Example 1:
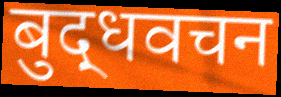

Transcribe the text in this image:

बुद्धवचन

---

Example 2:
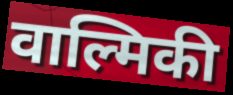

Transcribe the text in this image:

वाल्मिकी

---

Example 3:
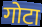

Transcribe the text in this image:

गोटा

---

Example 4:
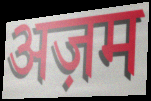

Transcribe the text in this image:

अज़म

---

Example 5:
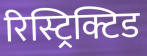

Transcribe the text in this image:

रिस्ट्रिक्टिड